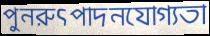
পুনরুৎপাদনযোগ্যতা